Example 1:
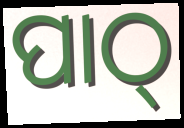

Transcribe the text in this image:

ପାଠ୍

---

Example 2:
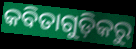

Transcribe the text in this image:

କବିତାଗୁଡ଼ିକରୁ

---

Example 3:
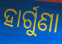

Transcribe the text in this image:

ହାର୍ଗୁଣା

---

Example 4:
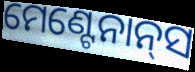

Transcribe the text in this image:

ମେଣ୍ଟେନାନ୍‌ସ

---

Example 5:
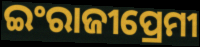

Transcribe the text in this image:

ଇଂରାଜୀପ୍ରେମୀ